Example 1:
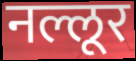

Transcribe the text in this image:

नल्लूर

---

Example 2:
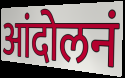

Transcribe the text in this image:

आंदोलनं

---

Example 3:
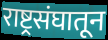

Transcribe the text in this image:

राष्ट्रसंघातून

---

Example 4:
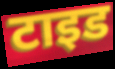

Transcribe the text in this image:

टाइड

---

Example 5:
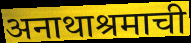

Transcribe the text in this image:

अनाथाश्रमाची